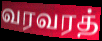
வரவரத்